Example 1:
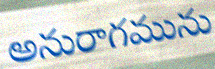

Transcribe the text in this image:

అనురాగమును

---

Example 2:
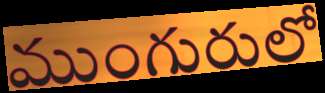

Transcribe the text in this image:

ముంగురులో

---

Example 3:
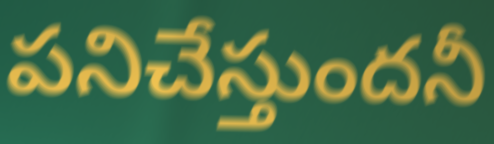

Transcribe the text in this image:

పనిచేస్తుందనీ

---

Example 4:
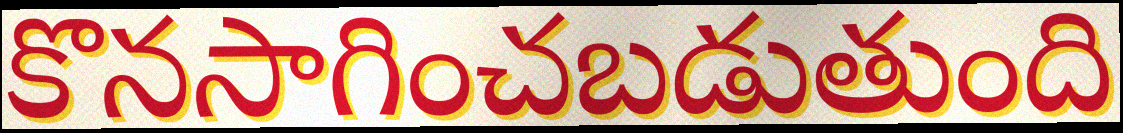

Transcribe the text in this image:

కొనసాగించబడుతుంది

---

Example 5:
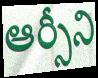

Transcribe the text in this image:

ఆర్సీని